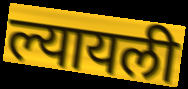
ल्यायली